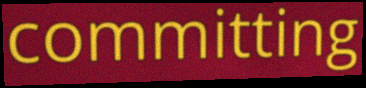
committing